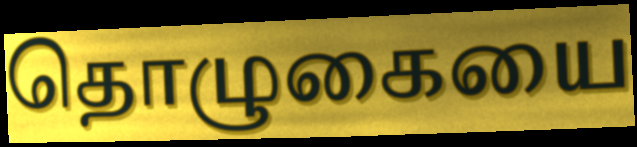
தொழுகையை